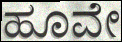
ಹೂವೇ